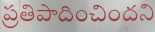
ప్రతిపాదించిందని